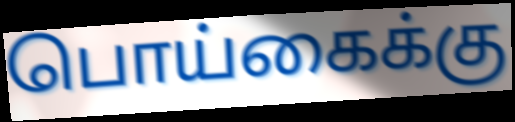
பொய்கைக்கு